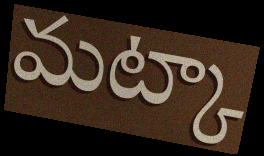
మట్కా